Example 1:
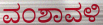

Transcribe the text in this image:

ವಂಶಾವಳಿ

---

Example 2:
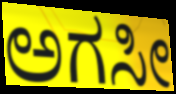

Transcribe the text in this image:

ಅಗಸೀ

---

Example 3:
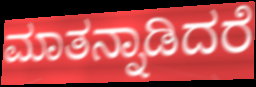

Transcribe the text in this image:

ಮಾತನ್ನಾಡಿದರೆ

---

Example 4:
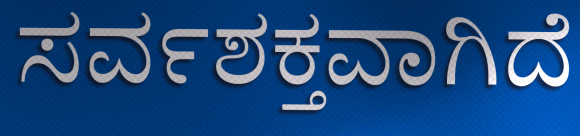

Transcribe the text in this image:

ಸರ್ವಶಕ್ತವಾಗಿದೆ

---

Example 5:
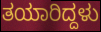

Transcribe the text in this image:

ತಯಾರಿದ್ದಳು